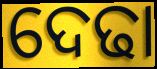
ଦେଢା